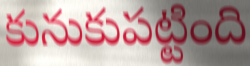
కునుకుపట్టింది